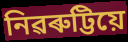
নিৱৰুট্টিয়ে